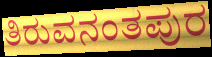
ತಿರುವನಂತಪುರ